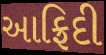
આફ્રિદી